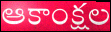
ఆకాంక్షల